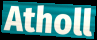
Atholl